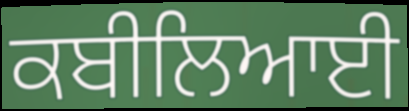
ਕਬੀਲਿਆਈ